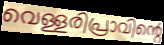
വെള്ളരിപ്രാവിന്റെ